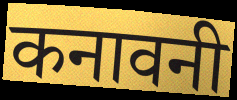
कनावनी